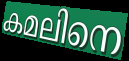
കമലിനെ